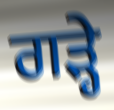
ਗੜ੍ਹੇ